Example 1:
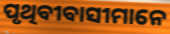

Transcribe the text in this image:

ପୃଥିବୀବାସୀମାନେ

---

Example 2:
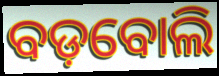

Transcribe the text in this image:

ବଡ଼ବୋଲି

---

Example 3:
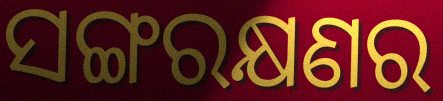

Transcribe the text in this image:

ସଙ୍ଗରକ୍ଷଣର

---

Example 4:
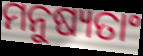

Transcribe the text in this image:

ମନୁଷ୍ୟତାଂ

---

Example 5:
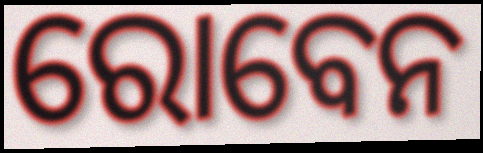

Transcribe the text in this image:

ରୋବେନ